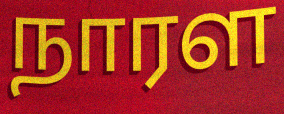
நாரள